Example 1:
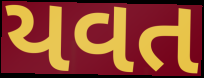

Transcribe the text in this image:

યવત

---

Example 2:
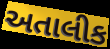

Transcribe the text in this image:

અતાલીક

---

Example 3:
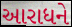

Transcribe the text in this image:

આરાધને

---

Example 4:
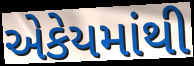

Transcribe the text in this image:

એકેયમાંથી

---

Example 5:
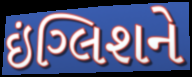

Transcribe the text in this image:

ઇંગ્લિશને